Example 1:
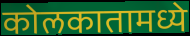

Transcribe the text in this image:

कोलकातामध्ये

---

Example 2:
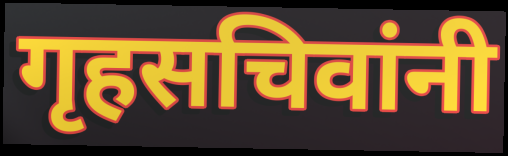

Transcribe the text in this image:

गृहसचिवांनी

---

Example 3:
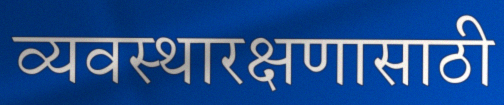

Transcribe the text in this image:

व्यवस्थारक्षणासाठी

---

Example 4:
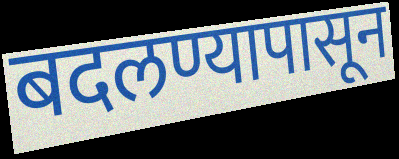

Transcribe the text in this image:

बदलण्यापासून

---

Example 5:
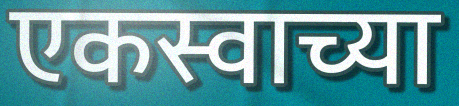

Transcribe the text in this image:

एकस्वाच्या